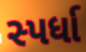
સ્પર્ધા